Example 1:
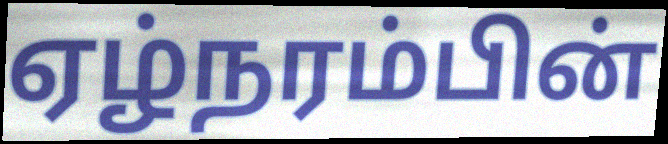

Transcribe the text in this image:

ஏழ்நரம்பின்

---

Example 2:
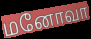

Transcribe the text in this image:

மனோவா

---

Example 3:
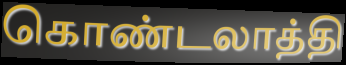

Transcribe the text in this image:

கொண்டலாத்தி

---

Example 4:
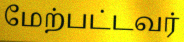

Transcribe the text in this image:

மேற்பட்டவர்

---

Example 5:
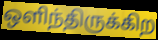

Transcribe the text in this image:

ஒளிந்திருக்கிற